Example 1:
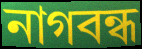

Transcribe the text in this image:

নাগবন্ধ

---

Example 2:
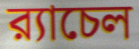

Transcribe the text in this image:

র‍্যাচেল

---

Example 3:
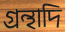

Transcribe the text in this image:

গ্রন্থাদি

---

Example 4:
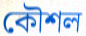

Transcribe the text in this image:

কৌশল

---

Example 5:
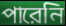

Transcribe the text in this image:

পারেনি